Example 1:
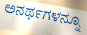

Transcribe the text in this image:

ಅನರ್ಥಗಳನ್ನೂ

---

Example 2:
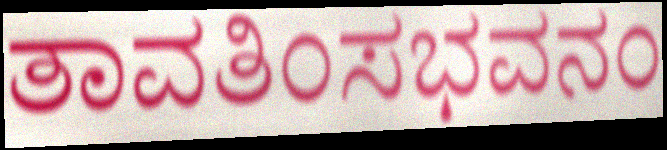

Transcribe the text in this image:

ತಾವತಿಂಸಭವನಂ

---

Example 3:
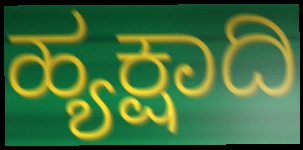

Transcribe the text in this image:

ಹ್ಯಕ್ಷಾದಿ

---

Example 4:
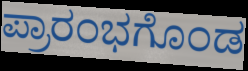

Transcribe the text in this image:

ಪ್ರಾರಂಭಗೊಂಡ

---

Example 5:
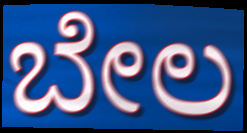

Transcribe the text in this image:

ಬೇಲ